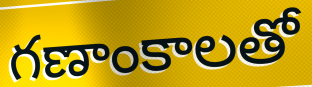
గణాంకాలతో